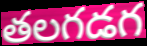
తలగడగ